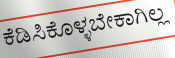
ಕೆಡಿಸಿಕೊಳ್ಳಬೇಕಾಗಿಲ್ಲ